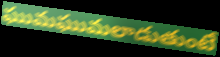
ఘుమఘుమలాడుతుంటే